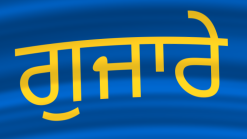
ਗੁਜਾਰੇ